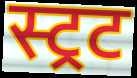
स्ट्रट